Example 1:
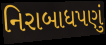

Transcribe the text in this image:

નિરાબાધપણું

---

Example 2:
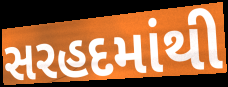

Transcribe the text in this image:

સરહદમાંથી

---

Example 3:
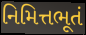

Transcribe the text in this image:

નિમિત્તભૂતં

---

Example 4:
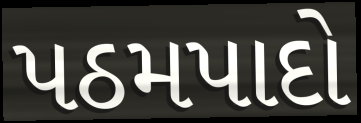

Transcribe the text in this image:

પઠમપાદો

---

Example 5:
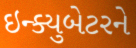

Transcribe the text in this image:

ઇન્ક્યુબેટરને